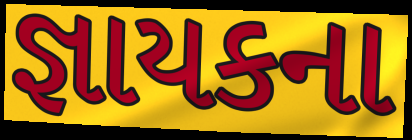
જ્ઞાયકના